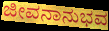
ಜೀವನಾನುಭವ